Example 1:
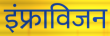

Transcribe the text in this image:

इंफ्राविजन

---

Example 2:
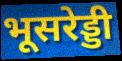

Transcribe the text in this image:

भूसरेड्डी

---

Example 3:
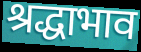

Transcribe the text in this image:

श्रद्धाभाव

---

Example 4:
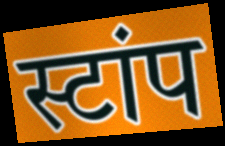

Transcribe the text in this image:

स्टांप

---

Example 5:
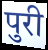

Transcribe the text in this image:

पुरी